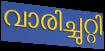
വാരിച്ചുറ്റി